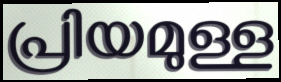
പ്രിയമുള്ള